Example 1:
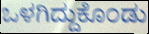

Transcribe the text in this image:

ಒಳಗಿದ್ದುಕೊಂಡು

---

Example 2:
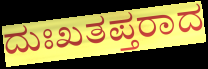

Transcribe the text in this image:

ದುಃಖತಪ್ತರಾದ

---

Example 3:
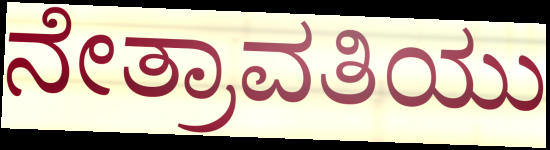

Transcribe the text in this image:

ನೇತ್ರಾವತಿಯು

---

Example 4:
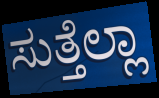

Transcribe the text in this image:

ಸುತ್ತೆಲ್ಲಾ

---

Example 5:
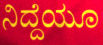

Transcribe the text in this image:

ನಿದ್ದೆಯೂ